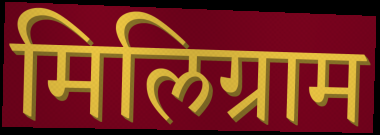
मिलिग्राम